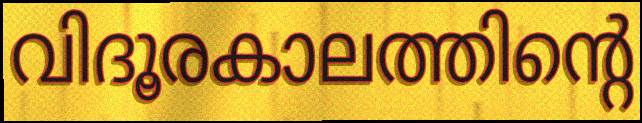
വിദൂരകാലത്തിന്റെ